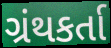
ગ્રંથકર્તા